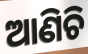
ଆଣିଚି